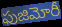
ఫుజిమోరీ